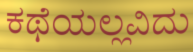
ಕಥೆಯಲ್ಲವಿದು